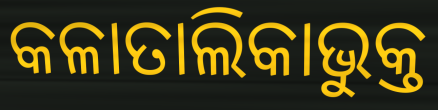
କଳାତାଲିକାଭୁକ୍ତ